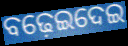
ବଢ଼େଇଦେଇ